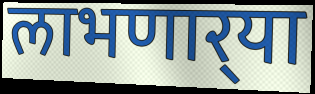
लाभणार्‍या